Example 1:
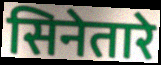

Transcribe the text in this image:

सिनेतारे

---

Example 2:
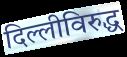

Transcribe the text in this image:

दिल्लीविरुद्ध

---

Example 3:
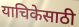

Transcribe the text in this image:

याचिकेसाठी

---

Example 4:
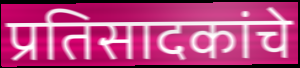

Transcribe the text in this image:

प्रतिसादकांचे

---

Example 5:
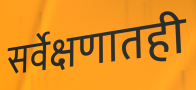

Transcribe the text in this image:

सर्वेक्षणातही